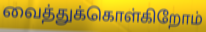
வைத்துக்கொள்கிறோம்